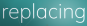
replacing